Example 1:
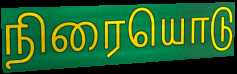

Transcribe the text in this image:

நிரையொடு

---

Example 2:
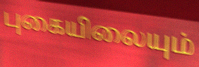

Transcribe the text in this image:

புகையிலையும்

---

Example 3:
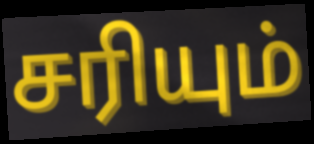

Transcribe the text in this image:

சரியும்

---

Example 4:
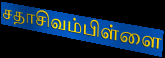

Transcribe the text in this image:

சதாசிவம்பிள்ளை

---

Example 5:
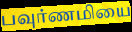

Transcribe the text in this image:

பவுர்ணமியை